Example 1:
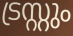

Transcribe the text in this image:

ട്രസ്റ്റും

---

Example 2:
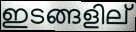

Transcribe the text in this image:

ഇടങ്ങളില്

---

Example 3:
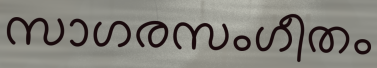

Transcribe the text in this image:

സാഗരസംഗീതം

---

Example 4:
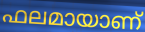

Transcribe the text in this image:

ഫലമായാണ്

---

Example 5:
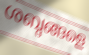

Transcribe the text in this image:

ശബ്ദങ്ങളെ